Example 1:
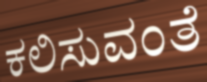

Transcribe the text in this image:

ಕಲಿಸುವಂತೆ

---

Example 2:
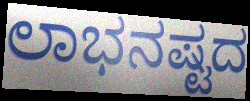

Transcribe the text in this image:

ಲಾಭನಷ್ಟದ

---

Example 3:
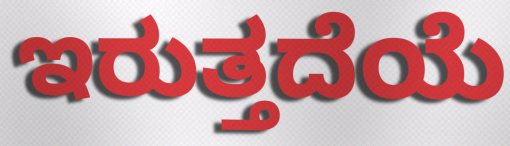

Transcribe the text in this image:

ಇರುತ್ತದೆಯೆ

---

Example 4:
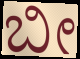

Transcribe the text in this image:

ಬೀ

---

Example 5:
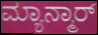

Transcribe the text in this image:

ಮ್ಯಾನ್ಮಾರ್